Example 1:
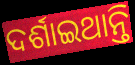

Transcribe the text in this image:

ଦର୍ଶାଇଥାନ୍ତି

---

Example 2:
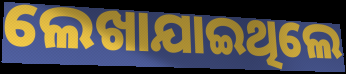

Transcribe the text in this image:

ଲେଖାଯାଇଥିଲେ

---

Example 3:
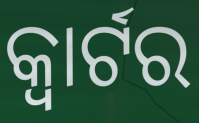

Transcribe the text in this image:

କ୍ଵାର୍ଟର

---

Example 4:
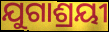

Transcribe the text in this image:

ଯୁଗାଶ୍ରୟୀ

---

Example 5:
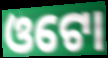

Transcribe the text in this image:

ଓଟୋ